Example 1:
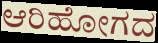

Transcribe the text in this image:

ಆರಿಹೋಗದ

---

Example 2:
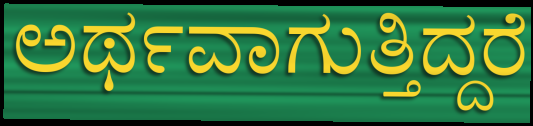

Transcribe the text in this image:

ಅರ್ಥವಾಗುತ್ತಿದ್ದರೆ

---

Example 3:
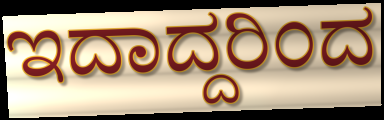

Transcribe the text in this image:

ಇದಾದ್ದರಿಂದ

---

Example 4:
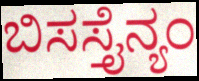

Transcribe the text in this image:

ಬಿಸಸ್ತೈನ್ಯಂ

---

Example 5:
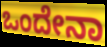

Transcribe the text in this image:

ಒಂದೇನಾ